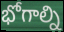
భోగాల్ని